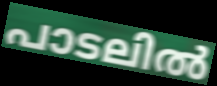
പാടലിൽ